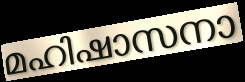
മഹിഷാസനാ